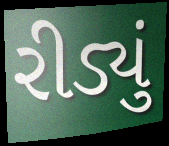
રીડ્યું